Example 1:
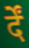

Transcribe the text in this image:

र्दें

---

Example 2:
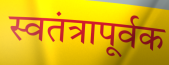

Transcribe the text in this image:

स्वतंत्रापूर्वक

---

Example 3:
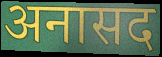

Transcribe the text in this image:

अनासद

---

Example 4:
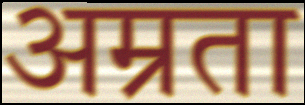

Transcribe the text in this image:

अम्रता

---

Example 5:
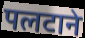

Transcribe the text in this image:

पलटाने